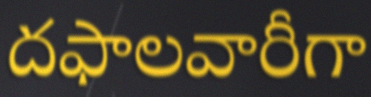
దఫాలవారీగా